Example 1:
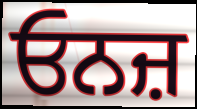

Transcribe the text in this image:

ਓਨਜ਼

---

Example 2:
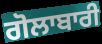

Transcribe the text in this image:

ਗੋਲਾਬਾਰੀ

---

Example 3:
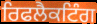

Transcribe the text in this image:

ਰਿਫਲੈਕਟਿੰਗ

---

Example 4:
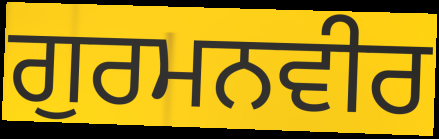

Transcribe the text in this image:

ਗੁਰਮਨਵੀਰ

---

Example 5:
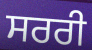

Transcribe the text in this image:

ਸਰਰੀ